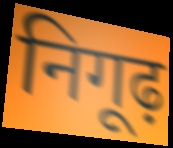
निगूढ़